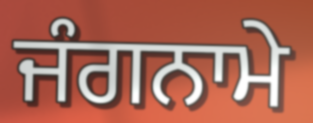
ਜੰਗਨਾਮੇ